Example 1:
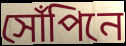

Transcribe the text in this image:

সোঁপিনে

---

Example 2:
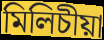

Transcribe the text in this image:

মিলিচীয়া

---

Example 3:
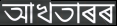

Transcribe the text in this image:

আখতাৰৰ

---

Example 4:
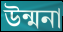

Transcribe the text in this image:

উন্মনা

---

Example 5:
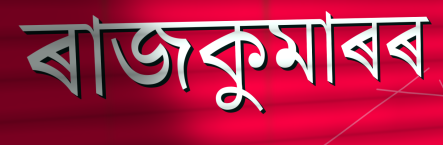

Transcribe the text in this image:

ৰাজকুমাৰৰ